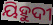
ୟିହୁଦୀ